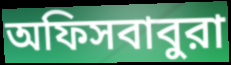
অফিসবাবুরা